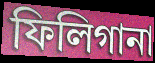
ফিলিগানা